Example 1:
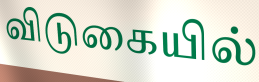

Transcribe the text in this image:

விடுகையில்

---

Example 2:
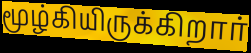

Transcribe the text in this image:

மூழ்கியிருக்கிறார்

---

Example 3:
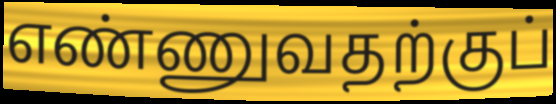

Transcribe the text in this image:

எண்ணுவதற்குப்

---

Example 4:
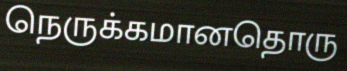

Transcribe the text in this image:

நெருக்கமானதொரு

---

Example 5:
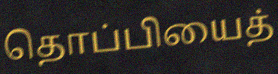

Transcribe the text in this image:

தொப்பியைத்